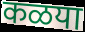
कळया